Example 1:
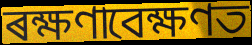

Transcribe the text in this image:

ৰক্ষণাবেক্ষণত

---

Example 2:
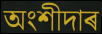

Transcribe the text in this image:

অংশীদাৰ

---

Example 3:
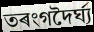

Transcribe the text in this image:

তৰংগদৈৰ্ঘ্য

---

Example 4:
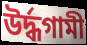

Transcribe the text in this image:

উৰ্দ্ধগামী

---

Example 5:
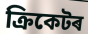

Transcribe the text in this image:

ক্ৰিকেটৰ